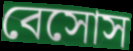
বেসোস